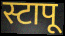
स्टापू